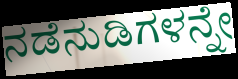
ನಡೆನುಡಿಗಳನ್ನೇ